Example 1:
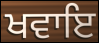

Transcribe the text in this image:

ਖਵਾਇ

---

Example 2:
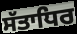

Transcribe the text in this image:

ਸੱਤਾਧਿਰ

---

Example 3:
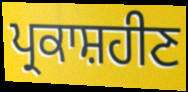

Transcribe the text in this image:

ਪ੍ਰਕਾਸ਼ਹੀਣ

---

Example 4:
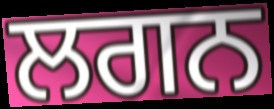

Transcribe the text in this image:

ਲਗਨ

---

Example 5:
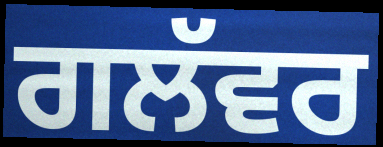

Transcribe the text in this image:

ਗਲੱਵਰ